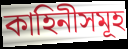
কাহিনীসমূহ